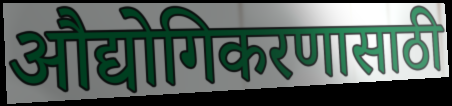
औद्योगिकरणासाठी